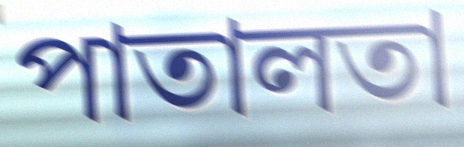
পাতালতা